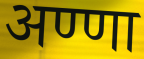
अण्णा